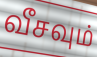
வீசவும்